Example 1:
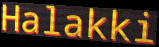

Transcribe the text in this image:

Halakki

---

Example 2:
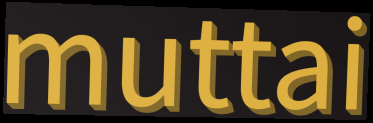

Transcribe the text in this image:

muttai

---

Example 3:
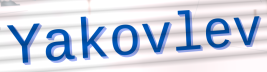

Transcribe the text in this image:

Yakovlev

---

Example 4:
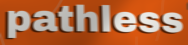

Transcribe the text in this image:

pathless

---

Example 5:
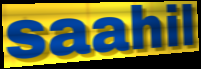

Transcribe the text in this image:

saahil